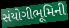
સંયોગીભૂમિની